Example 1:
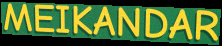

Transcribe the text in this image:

MEIKANDAR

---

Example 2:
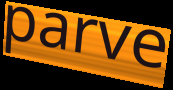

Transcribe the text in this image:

parve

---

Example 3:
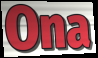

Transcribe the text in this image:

Ona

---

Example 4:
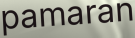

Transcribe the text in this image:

pamaran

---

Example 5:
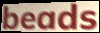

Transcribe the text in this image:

beads